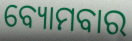
ବ୍ୟୋମବାର